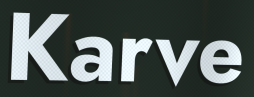
Karve